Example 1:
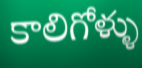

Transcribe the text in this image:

కాలిగోళ్ళు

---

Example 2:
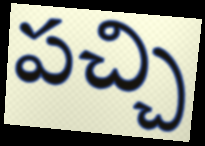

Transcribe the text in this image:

పచ్చి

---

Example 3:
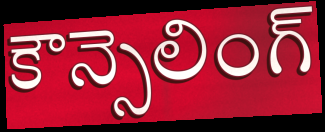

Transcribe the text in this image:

కౌన్సెలింగ్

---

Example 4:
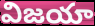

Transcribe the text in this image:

విజయా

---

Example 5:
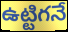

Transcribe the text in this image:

ఉట్టిగనే